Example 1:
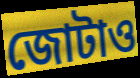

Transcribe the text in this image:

জোটাও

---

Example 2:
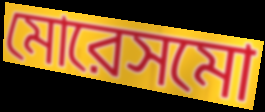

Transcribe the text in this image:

মোরেসমো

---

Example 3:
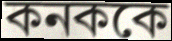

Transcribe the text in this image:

কনককে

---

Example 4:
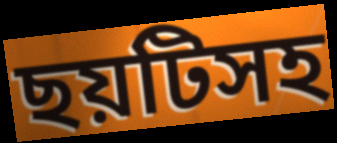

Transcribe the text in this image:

ছয়টিসহ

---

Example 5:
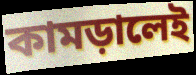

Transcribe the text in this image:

কামড়ালেই